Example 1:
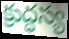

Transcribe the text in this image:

క్రుద్ధస్య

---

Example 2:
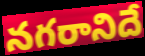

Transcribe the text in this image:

నగరానిదే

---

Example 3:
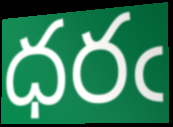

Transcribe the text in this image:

ధరఁ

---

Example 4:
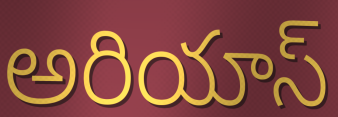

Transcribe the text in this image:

అరియాస్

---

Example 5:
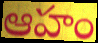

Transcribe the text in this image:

ఆహం